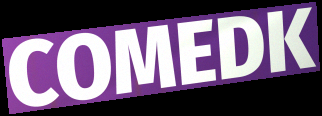
COMEDK